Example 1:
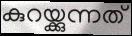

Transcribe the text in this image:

കുറയ്ക്കുന്നത്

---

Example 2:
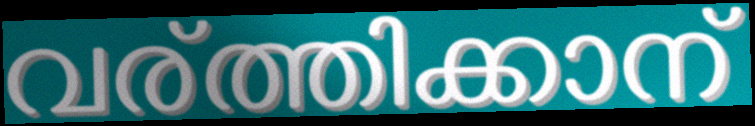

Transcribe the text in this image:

വര്ത്തിക്കാന്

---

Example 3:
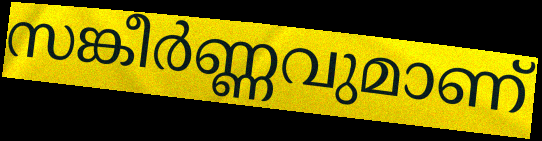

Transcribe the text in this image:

സങ്കീർണ്ണവുമാണ്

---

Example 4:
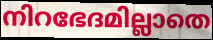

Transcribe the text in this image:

നിറഭേദമില്ലാതെ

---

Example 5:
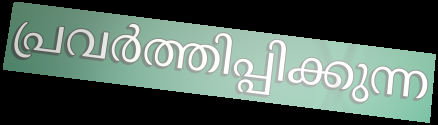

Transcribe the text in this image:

പ്രവർത്തിപ്പിക്കുന്ന